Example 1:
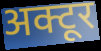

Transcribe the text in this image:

अक्टूर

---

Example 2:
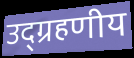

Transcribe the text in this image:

उद्ग्रहणीय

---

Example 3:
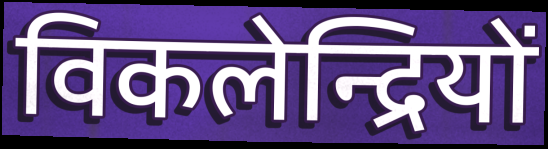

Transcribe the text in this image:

विकलेन्द्रियों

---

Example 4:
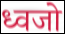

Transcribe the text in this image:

ध्वजो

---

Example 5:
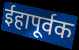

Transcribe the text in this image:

ईहापूर्वक